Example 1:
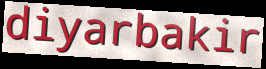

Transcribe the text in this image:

diyarbakir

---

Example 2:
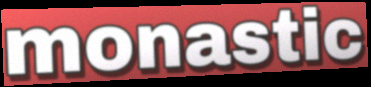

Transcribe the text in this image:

monastic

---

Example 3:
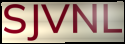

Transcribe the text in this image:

SJVNL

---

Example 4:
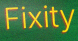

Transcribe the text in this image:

Fixity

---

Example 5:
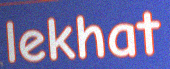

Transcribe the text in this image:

lekhat